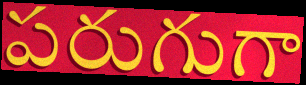
పరుగుగా